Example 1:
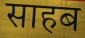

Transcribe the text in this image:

साहब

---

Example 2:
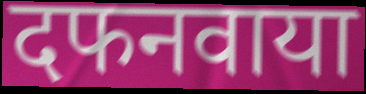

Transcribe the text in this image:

दफनवाया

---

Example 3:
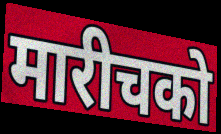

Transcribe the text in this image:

मारीचको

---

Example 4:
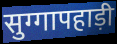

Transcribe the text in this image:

सुग्गापहाड़ी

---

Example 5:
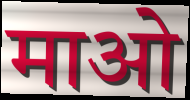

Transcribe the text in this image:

माओ